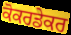
ਕੋਕਰਡੇਕਰ